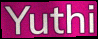
Yuthi